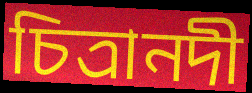
চিত্রানদী